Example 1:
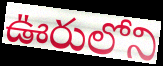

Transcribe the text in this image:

ఊరులోని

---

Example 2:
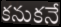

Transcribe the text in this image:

కనుకనే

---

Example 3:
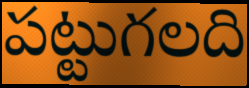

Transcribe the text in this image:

పట్టుగలది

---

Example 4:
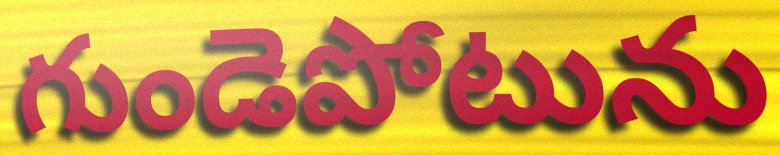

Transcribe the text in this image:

గుండెపోటును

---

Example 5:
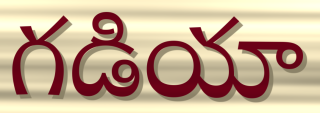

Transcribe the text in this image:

గడియా